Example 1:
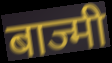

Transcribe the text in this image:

बाज्मी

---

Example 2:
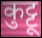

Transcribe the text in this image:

कुट्टू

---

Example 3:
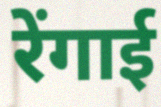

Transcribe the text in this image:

रेंगाई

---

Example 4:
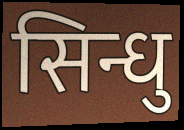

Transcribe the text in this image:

सिन्‍धु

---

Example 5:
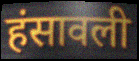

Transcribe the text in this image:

हंसावली